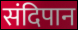
संदिपान